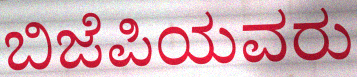
ಬಿಜೆಪಿಯವರು